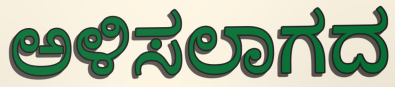
ಅಳಿಸಲಾಗದ